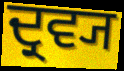
ਦ੍ਰਵ੍ਯ